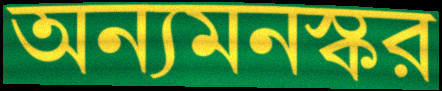
অন্যমনস্কর